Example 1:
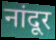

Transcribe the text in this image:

नांदूर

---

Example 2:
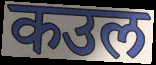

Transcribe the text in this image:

कउल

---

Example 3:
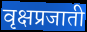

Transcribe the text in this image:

वृक्षप्रजाती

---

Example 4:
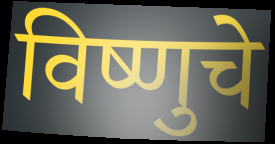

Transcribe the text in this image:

विष्णुचे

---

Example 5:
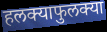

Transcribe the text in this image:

हलक्याफुलक्या